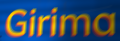
Girima